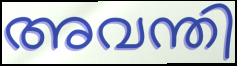
അവന്തി